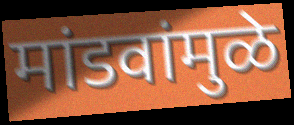
मांडवांमुळे